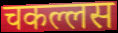
चकल्लस